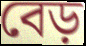
বেড়